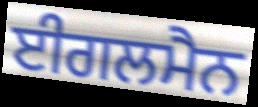
ਈਗਲਮੈਨ